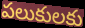
పలుకులకు